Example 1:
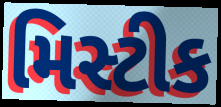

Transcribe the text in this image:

મિસ્ટીક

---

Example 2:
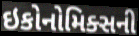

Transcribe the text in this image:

ઇકોનોમિક્સની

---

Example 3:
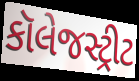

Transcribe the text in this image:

કૉલેજસ્ટ્રીટ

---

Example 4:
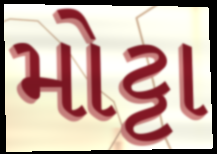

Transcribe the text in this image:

મોટ્ટા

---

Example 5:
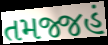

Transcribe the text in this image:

તમજ્જહં